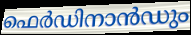
ഫെർഡിനാൻഡും